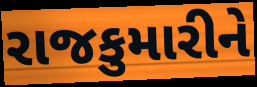
રાજકુમારીને